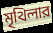
মৃথিলার